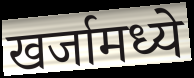
खर्जामध्ये